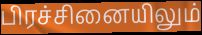
பிரச்சினையிலும்